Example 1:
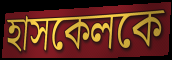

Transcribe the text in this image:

হাসকেলকে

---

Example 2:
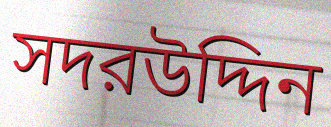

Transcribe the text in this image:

সদরউদ্দিন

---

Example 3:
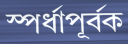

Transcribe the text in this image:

স্পর্ধাপূর্বক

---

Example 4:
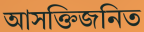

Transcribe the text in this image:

আসক্তিজনিত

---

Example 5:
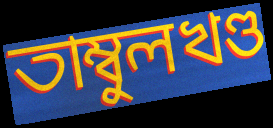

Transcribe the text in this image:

তাম্বুলখণ্ড